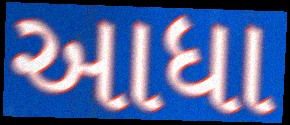
આધા